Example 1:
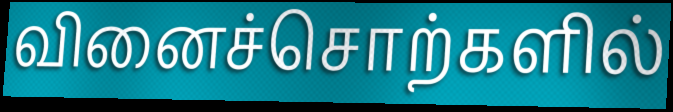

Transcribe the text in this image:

வினைச்சொற்களில்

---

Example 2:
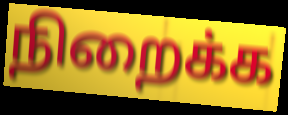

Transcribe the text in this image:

நிறைக்க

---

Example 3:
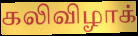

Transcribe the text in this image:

கலிவிழாக்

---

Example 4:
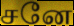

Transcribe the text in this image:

சனே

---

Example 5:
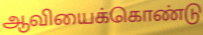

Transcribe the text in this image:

ஆவியைக்கொண்டு